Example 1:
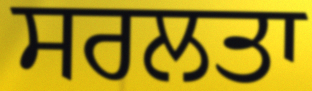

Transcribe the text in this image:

ਸਰਲਤਾ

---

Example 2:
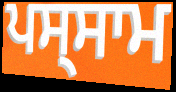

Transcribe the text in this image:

ਪਸ੍ਸਾਮ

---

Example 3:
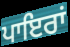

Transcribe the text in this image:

ਪਾਇਰਾਂ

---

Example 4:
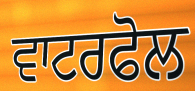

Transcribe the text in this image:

ਵਾਟਰਫੋਲ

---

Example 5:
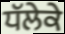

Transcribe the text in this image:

ਧੱਲੇਕੇ